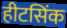
हीटसिंक